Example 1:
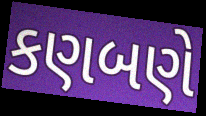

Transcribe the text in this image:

કણબણે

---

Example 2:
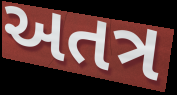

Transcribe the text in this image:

અતત્ર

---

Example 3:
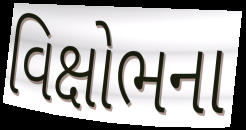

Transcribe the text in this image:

વિક્ષોભના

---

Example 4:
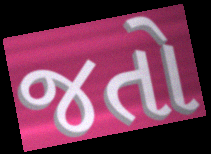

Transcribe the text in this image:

જતો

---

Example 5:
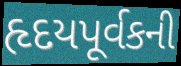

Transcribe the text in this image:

હૃદયપૂર્વકની